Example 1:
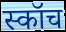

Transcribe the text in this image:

स्कॉच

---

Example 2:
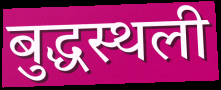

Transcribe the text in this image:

बुद्धस्थली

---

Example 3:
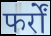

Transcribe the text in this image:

फर्रों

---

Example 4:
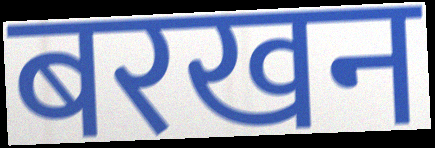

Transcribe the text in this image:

बरखन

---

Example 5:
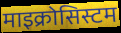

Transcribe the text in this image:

माइक्रोसिस्टम